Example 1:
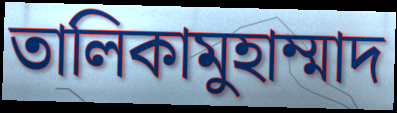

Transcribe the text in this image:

তালিকামুহাম্মাদ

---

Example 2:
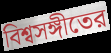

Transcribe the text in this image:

বিশ্বসঙ্গীতের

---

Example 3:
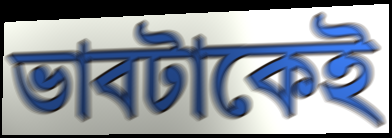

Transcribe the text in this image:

ভাবটাকেই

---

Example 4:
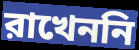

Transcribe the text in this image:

রাখেননি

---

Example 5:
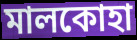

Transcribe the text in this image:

মালকোহা